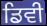
ਡਿਵੀ